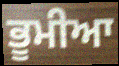
ਭੂਮੀਆ